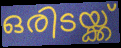
ഒരിടയ്ക്ക്